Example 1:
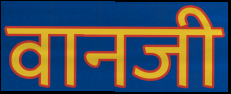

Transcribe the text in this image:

वानजी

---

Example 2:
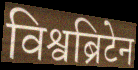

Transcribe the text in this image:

विश्वब्रिटेन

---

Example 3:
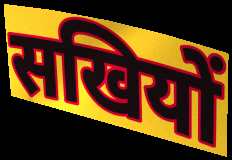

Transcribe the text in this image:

सखियों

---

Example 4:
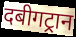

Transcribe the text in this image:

दबीगट्रान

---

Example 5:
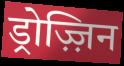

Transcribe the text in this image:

ड्रोज़्ज़िन